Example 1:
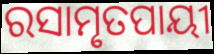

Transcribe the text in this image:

ରସାମୃତପାୟୀ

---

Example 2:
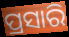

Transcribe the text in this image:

ପ୍ରସାରି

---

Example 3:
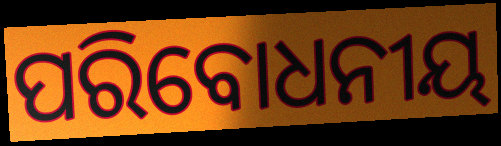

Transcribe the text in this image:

ପରିବୋଧନୀୟ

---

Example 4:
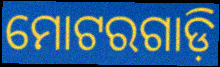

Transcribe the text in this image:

ମୋଟରଗାଡ଼ି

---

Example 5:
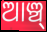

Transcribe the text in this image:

ଆଞ୍ଚ୍